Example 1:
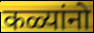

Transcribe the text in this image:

कळ्यांनो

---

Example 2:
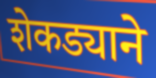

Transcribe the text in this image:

शेकड्याने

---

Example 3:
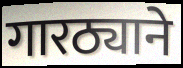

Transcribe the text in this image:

गारठ्याने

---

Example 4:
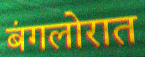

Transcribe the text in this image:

बंगलोरात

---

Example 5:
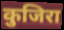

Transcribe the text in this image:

कुजिरा